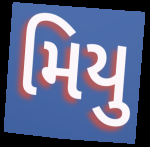
મિયુ